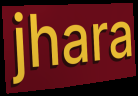
jhara